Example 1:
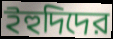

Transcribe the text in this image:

ইহুদিদের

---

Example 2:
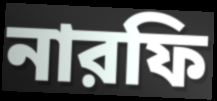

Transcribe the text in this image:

নারফি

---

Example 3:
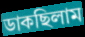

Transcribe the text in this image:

ডাকছিলাম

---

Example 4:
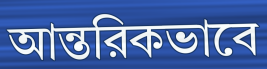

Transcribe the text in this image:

আন্তরিকভাবে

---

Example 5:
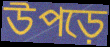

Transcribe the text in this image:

উপড়ে